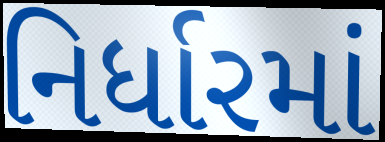
નિર્ધારમાં